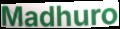
Madhuro